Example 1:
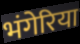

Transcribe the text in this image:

भंगेरिया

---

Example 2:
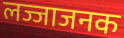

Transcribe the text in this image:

लज्जाजनक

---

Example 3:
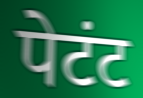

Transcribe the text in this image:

पेटंट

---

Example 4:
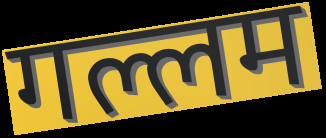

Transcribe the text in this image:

गल्लम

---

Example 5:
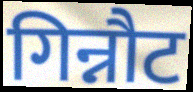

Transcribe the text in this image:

गिन्नौट